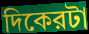
দিকেরটা